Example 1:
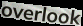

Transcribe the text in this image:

overlook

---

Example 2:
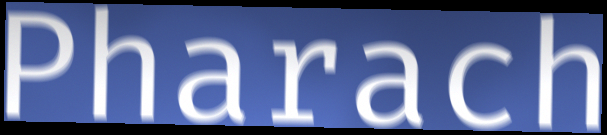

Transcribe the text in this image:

Pharach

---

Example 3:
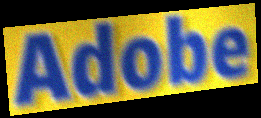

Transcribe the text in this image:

Adobe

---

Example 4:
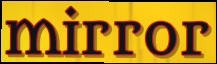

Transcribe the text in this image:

mirror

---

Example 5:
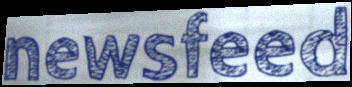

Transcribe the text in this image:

newsfeed